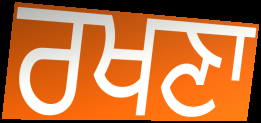
ਰਖਣਾ